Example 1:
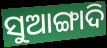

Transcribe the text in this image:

ସୁଆଙ୍ଗାଦି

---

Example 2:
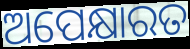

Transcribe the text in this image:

ଅପେକ୍ଷାରତ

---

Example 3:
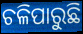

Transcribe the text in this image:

ଚଳିପାରୁଛି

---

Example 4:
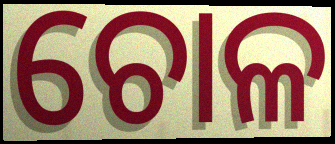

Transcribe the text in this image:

ଚୋଳ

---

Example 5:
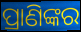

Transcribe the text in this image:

ପ୍ରାଣିଙ୍କର